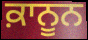
ਕ਼ਾਨੂਨ